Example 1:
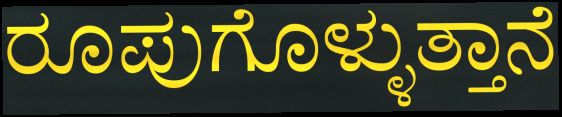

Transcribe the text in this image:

ರೂಪುಗೊಳ್ಳುತ್ತಾನೆ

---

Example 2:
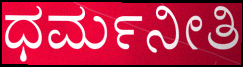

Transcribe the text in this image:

ಧರ್ಮನೀತಿ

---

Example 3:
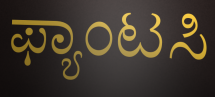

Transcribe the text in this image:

ಫ್ಯಾಂಟಸಿ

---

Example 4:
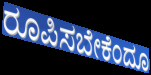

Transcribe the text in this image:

ರೂಪಿಸಬೇಕೆಂದೂ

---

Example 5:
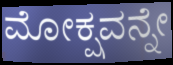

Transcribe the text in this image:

ಮೋಕ್ಷವನ್ನೇ